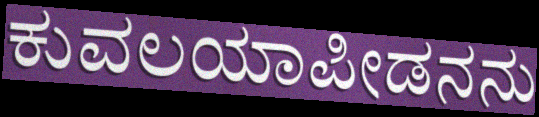
ಕುವಲಯಾಪೀಡನನು